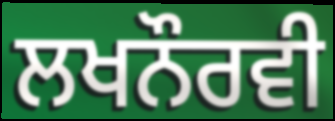
ਲਖਨੌਰਵੀ